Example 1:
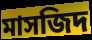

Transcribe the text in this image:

মাসজিদ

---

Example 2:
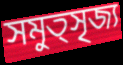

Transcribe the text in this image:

সমুত্সৃজ্য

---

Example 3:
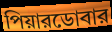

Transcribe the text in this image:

পিয়ারডোবার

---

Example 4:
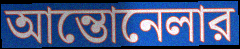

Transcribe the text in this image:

আন্তোনেলার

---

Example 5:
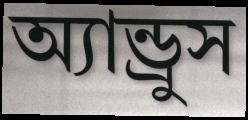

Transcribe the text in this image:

অ্যান্ড্রুস